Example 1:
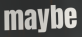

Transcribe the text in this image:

maybe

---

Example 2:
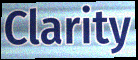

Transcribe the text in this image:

Clarity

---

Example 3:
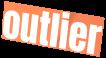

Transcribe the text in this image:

outlier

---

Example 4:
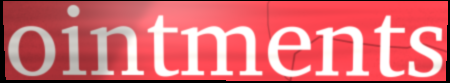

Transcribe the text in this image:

ointments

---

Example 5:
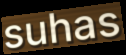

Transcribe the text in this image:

suhas